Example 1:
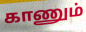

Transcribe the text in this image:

காணும்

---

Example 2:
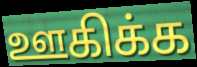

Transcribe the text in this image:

ஊகிக்க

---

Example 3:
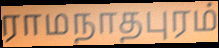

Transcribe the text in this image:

ராமநாதபுரம்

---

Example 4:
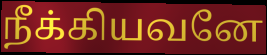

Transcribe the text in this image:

நீக்கியவனே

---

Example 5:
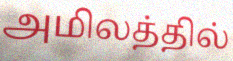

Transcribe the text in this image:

அமிலத்தில்